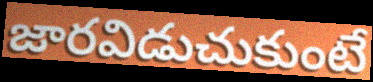
జారవిడుచుకుంటే